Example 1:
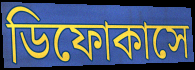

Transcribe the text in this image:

ডিফোকাসে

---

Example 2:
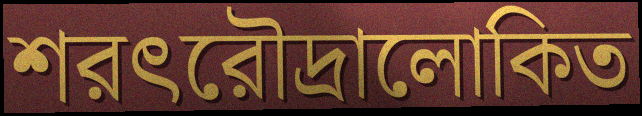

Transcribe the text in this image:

শরৎরৌদ্রালোকিত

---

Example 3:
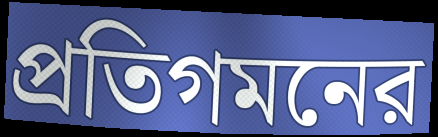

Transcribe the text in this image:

প্রতিগমনের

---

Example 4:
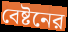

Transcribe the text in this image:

বেষ্টনের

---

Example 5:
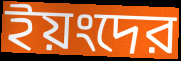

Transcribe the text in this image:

ইয়ংদের